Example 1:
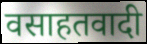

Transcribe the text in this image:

वसाहतवादी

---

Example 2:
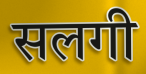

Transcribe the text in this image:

सलगी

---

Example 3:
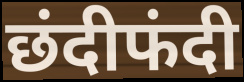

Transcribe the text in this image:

छंदीफंदी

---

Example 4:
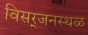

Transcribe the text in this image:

विसर्जनस्थळ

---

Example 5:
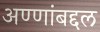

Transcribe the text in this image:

अण्णांबद्दल